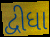
દ્વીધા